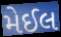
મેઈલ